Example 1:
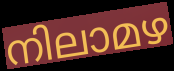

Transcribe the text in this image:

നിലാമഴ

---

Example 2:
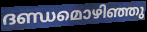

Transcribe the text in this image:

ദണ്ഡമൊഴിഞ്ഞു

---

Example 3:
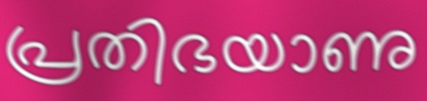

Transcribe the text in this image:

പ്രതിഭയാണു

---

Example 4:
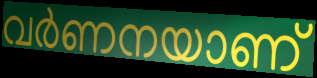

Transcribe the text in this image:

വർണനയാണ്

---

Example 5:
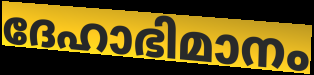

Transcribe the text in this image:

ദേഹാഭിമാനം